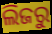
ଲିଜରୁ